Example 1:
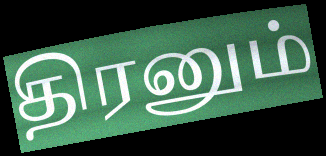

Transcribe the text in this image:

திரனும்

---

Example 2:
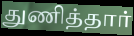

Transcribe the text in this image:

துணித்தார்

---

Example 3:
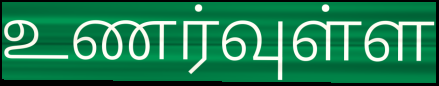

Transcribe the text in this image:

உணர்வுள்ள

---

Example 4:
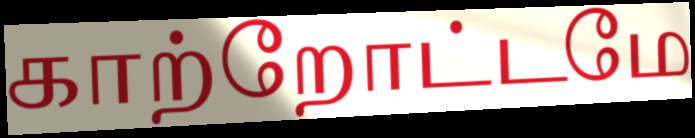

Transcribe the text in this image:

காற்றோட்டமே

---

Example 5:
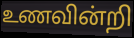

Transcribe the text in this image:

உணவின்றி